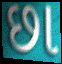
છા